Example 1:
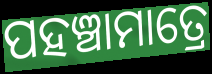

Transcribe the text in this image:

ପହଞ୍ଚାମାତ୍ରେ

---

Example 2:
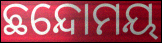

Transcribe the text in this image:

ଛନ୍ଦୋମୟ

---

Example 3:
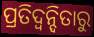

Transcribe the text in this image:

ପ୍ରତିଦ୍ୱନ୍ଦିତାରୁ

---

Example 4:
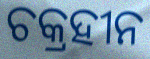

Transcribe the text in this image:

ଚକ୍ରହୀନ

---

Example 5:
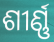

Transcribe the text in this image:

ଶୀର୍ଣ୍ଣ